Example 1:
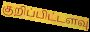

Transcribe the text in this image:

குறிப்பிட்டளவு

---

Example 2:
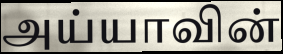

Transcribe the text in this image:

அய்யாவின்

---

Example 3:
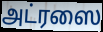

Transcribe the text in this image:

அட்ரஸை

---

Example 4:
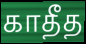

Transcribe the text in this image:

காதீத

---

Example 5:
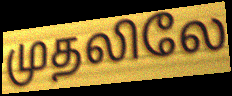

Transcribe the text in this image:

முதலிலே